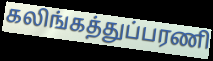
கலிங்கத்துப்பரணி